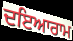
ਦਇਆਰਾਮ